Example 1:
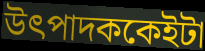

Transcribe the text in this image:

উৎপাদককেইটা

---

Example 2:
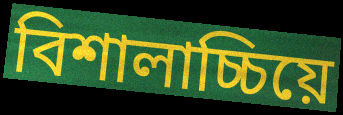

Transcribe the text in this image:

বিশালাচ্চিয়ে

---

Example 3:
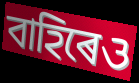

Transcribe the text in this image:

বাহিৰেও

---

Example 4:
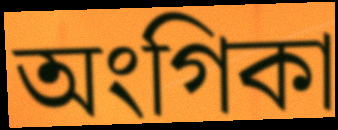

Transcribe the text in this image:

অংগিকা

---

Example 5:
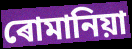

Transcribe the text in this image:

ৰোমানিয়া